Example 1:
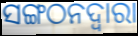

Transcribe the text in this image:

ସଙ୍ଗଠନଦ୍ୱାରା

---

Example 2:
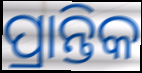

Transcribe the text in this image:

ପ୍ରାନ୍ତିକ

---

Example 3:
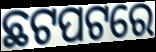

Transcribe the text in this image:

ଛଟପଟରେ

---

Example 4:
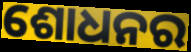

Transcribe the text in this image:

ଶୋଧନର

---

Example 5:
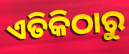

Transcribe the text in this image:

ଏତିକିଠାରୁ